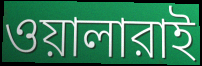
ওয়ালারাই